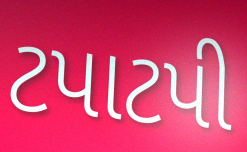
ટપાટપી